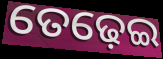
ତେଢ଼େଇ